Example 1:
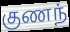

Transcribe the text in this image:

குணந்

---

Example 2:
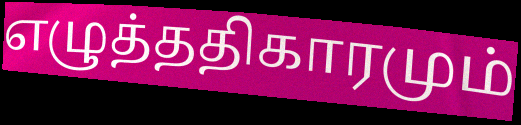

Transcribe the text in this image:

எழுத்ததிகாரமும்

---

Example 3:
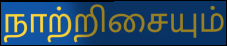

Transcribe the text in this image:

நாற்றிசையும்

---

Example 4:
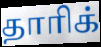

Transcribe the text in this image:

தாரிக்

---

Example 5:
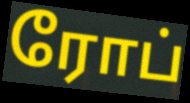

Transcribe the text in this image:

ரோப்